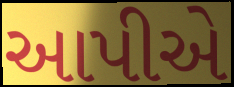
આપીએ